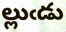
ల్లుఁడు